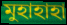
মুহাহাহা